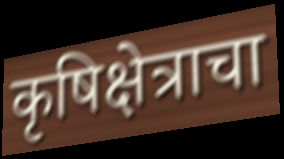
कृषिक्षेत्राचा